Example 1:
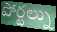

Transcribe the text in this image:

పోర్టల్ను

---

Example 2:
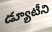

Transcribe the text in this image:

డ్యూటీని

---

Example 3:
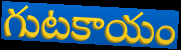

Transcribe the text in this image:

గుటకాయం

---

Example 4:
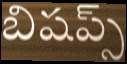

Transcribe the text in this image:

బిషప్స్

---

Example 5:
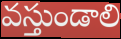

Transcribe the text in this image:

వస్తుండాలి